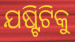
ଯଷ୍ଟିଟିକୁ